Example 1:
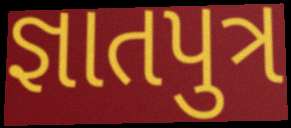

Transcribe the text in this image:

જ્ઞાતપુત્ર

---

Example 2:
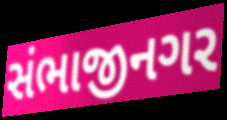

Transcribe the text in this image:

સંભાજીનગર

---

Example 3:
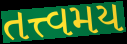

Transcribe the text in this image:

તત્ત્વમય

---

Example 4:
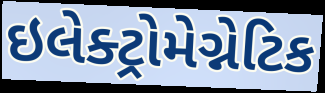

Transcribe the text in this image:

ઇલેક્ટ્રોમેગ્નેટિક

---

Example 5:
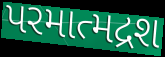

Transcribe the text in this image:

પરમાત્મદ્રશ